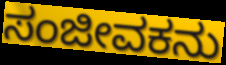
ಸಂಜೀವಕನು